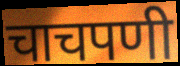
चाचपणी